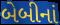
બેબીનાં